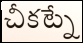
చీకట్నే